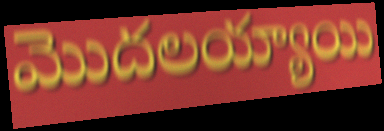
మొదలయ్యాయి